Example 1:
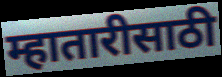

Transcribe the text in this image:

म्हातारीसाठी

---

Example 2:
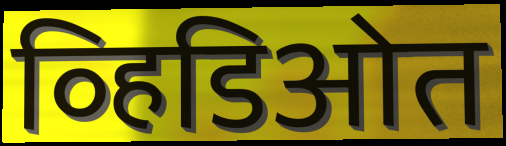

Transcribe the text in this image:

व्हिडिओत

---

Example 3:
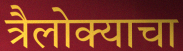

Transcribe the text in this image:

त्रैलोक्याचा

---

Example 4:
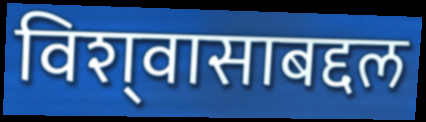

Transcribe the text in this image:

विश्वासाबद्दल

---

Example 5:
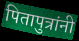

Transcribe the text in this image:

पितापुत्रांनी